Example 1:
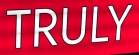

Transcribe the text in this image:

TRULY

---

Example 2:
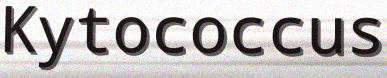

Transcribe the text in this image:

Kytococcus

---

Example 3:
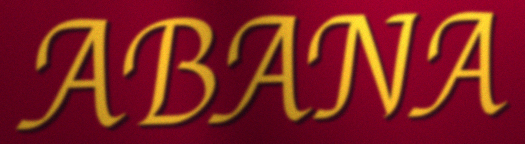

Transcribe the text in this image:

ABANA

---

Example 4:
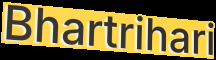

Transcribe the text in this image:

Bhartrihari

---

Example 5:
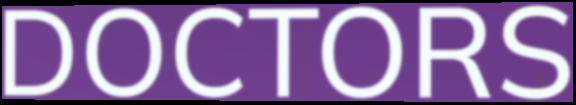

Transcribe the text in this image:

DOCTORS